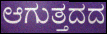
ಆಗುತ್ತದದ